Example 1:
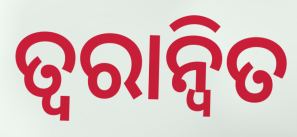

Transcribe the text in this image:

ତ୍ୱରାନ୍ୱିତ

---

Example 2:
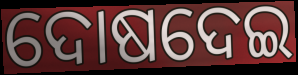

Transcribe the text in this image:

ଦୋଷଦେଇ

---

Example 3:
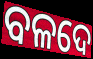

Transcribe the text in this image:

ବଳଦେ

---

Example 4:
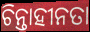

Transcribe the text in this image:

ଚିନ୍ତାହୀନତା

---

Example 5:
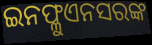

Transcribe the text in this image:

ଇନଫ୍ଳୁଏନସରଙ୍କ